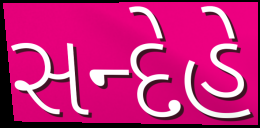
સન્દેહે